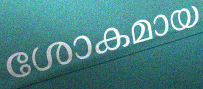
ശോകമായ